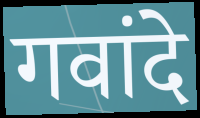
गवांदे